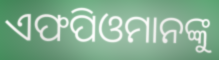
ଏଫପିଓମାନଙ୍କୁ